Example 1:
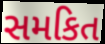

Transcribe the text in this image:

સમકિત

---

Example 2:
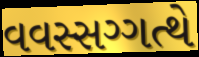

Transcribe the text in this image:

વવસ્સગ્ગત્થે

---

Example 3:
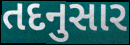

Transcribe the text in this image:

તદનુસાર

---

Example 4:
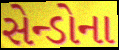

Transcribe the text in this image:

સેન્ડોના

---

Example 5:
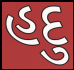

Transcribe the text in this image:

હદુ